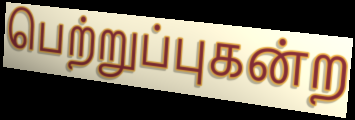
பெற்றுப்புகன்ற